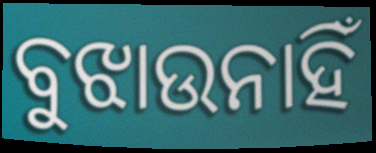
ବୁଝାଉନାହିଁ